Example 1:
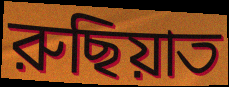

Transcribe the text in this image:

ৰুছিয়াত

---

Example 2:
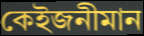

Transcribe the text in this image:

কেইজনীমান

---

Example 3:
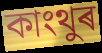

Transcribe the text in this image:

কাংথুৰ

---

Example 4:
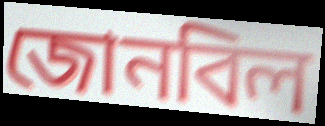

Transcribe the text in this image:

জোনবিল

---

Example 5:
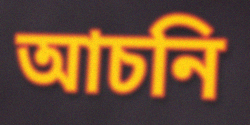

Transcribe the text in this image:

আচনি